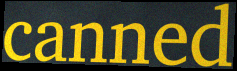
canned